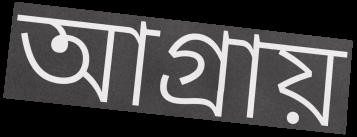
আগ্রায়